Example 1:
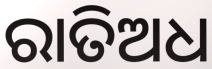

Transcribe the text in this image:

ରାତିଅଧ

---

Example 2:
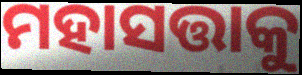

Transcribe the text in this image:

ମହାସତ୍ତାକୁ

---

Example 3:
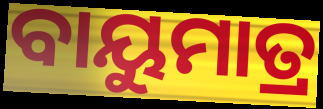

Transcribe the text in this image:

ବାୟୁମାତ୍ର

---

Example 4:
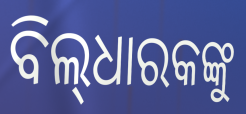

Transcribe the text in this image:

ବିଲ୍‌ଧାରକଙ୍କୁ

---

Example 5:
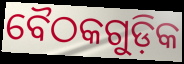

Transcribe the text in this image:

ବୈଠକଗୁଡ଼ିକ